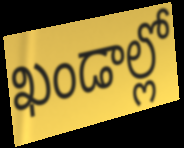
ఖండాల్లో